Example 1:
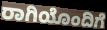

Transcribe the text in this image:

ರಾಗಿಯೊಂದಿಗೆ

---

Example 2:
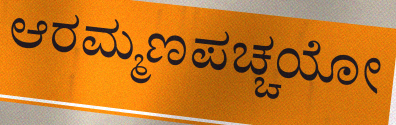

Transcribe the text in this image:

ಆರಮ್ಮಣಪಚ್ಚಯೋ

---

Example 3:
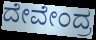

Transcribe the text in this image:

ದೇವೇಂದ್ರ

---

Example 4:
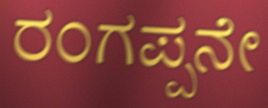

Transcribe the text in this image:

ರಂಗಪ್ಪನೇ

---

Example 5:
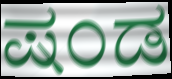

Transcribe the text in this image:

ಷಂಡ